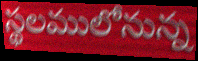
స్థలములోనున్న